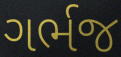
ગર્ભજ